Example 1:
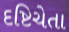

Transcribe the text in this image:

દષ્ટિચેતા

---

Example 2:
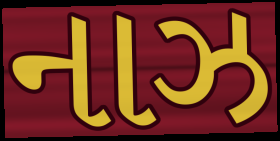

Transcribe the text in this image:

નાઝ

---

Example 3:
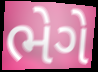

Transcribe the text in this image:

ભેગે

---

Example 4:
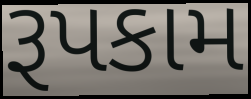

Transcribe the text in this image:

રૂપકામ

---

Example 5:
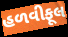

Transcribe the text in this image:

હળવીફૂલ